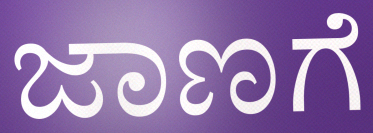
ಜಾಣಗೆ